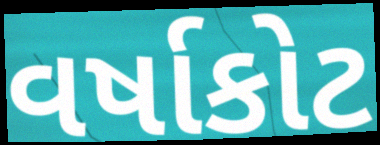
વર્ષાકોટ